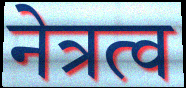
नेत्रत्व